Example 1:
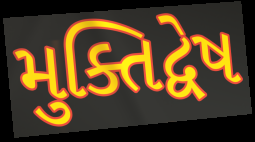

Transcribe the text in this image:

મુક્તિદ્વેષ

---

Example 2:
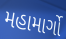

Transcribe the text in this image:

મહામાર્ગો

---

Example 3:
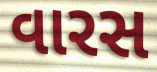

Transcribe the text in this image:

વારસ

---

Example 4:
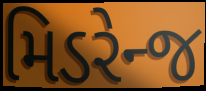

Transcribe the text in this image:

મિડરેન્જ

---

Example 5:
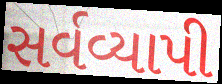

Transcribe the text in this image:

સર્વવ્યાપી